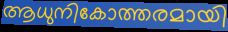
ആധുനികോത്തരമായി